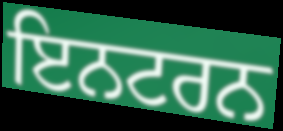
ਇਨਟਰਨ